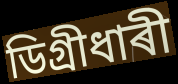
ডিগ্ৰীধাৰী